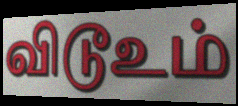
விடூஉம்